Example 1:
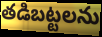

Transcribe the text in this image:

తడిబట్టలను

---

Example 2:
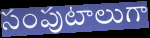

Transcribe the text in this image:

సంపుటాలుగా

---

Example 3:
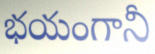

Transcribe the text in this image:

భయంగానీ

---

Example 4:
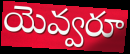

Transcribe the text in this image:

యెవ్వరూ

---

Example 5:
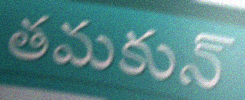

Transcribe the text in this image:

తమకున్